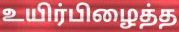
உயிர்பிழைத்த